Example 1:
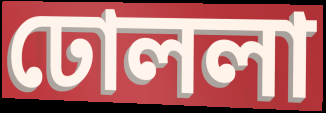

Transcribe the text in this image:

ঢোললা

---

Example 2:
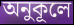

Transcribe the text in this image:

অনুকূলে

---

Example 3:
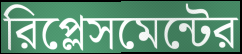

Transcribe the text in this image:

রিপ্লেসমেন্টের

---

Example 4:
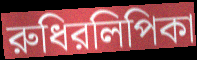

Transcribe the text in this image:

রুধিরলিপিকা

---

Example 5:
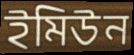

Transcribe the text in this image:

ইমিউন